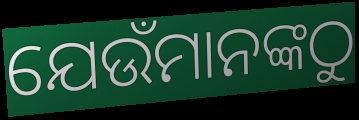
ଯେଉଁମାନଙ୍କଠୁ